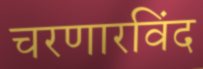
चरणारविंद